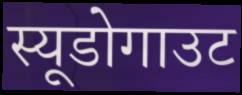
स्यूडोगाउट